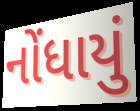
નોંધાયું